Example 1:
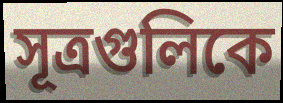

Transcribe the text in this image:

সূত্রগুলিকে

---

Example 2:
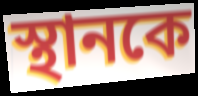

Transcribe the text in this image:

স্থানকে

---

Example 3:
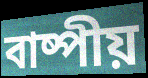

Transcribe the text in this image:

বাষ্পীয়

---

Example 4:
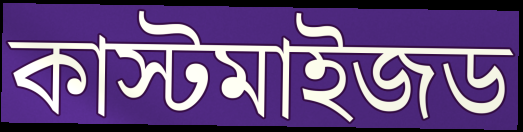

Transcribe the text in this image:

কাস্টমাইজড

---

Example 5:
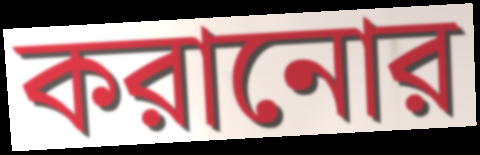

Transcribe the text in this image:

করানোর